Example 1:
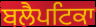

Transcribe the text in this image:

ਬਲੈਪਟਿਕਾ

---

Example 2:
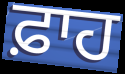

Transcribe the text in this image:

ਫ਼ਾਹ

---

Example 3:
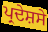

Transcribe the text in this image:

ਪ੍ਰਦੇਸ਼ਸੇ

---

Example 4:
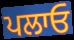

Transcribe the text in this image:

ਪਲਾਓ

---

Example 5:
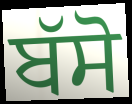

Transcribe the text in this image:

ਬੱਸੋ